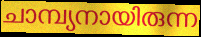
ചാമ്പ്യനായിരുന്ന